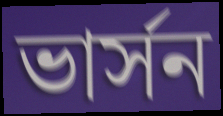
ভার্সন